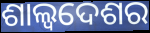
ଶାଲ୍ୱଦେଶର